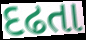
દઢતા